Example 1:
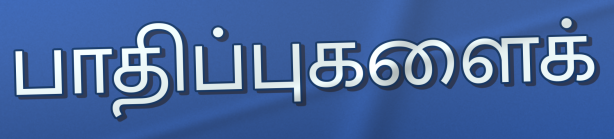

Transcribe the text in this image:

பாதிப்புகளைக்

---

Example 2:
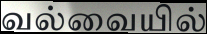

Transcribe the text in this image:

வல்வையில்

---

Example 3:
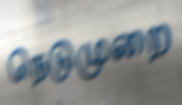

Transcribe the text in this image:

நெடுமுறை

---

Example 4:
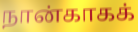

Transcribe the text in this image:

நான்காகக்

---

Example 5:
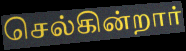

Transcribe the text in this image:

செல்கின்றார்